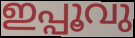
ഇപ്പൂവു